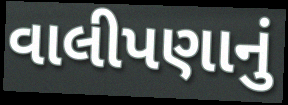
વાલીપણાનું